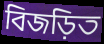
বিজড়িত